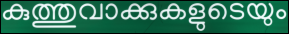
കുത്തുവാക്കുകളുടെയും